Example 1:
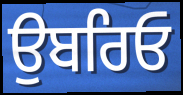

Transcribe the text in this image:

ਉਬਰਿਓ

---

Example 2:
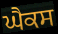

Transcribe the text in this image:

ਘੈਕਸ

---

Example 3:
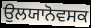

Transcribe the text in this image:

ਉਲਯਾਨੋਵਸਕ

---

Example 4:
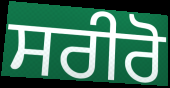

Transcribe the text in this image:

ਸਰੀਰੋ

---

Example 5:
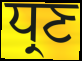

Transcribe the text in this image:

ਧ੍ਰਣ